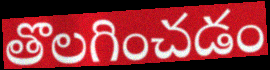
తొలగించడం